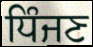
ਧਿੰਜਣ